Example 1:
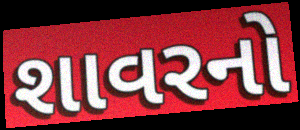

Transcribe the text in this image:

શાવરનો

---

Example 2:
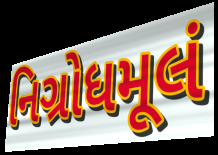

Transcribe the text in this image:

નિગ્રોધમૂલં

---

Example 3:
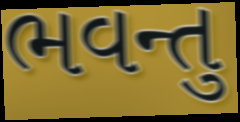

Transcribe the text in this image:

ભવન્તુ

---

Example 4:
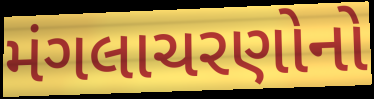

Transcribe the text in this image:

મંગલાચરણોનો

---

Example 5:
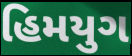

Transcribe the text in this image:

હિમયુગ